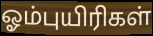
ஓம்புயிரிகள்